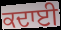
ਕਦਾਈ